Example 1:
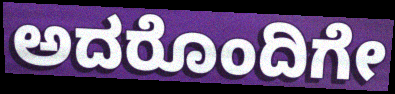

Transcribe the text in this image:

ಅದರೊಂದಿಗೇ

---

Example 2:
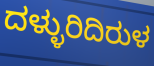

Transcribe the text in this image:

ದಳ್ಳುರಿದಿರುಳ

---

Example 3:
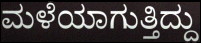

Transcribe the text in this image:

ಮಳೆಯಾಗುತ್ತಿದ್ದು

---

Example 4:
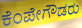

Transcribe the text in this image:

ಕೆಂಪೇಗೌಡರು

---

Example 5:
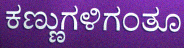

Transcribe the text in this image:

ಕಣ್ಣುಗಳಿಗಂತೂ